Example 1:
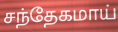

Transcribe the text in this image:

சந்தேகமாய்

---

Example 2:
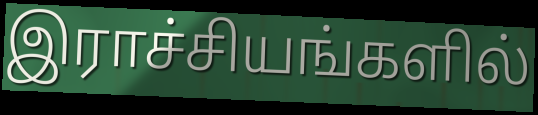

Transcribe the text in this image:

இராச்சியங்களில்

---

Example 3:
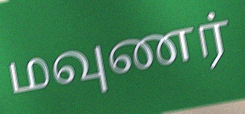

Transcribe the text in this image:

மவுணர்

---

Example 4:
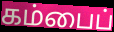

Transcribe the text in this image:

கம்பைப்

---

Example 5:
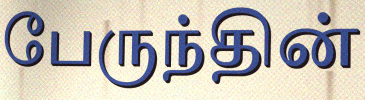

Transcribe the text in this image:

பேருந்தின்